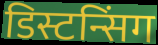
डिस्टन्सिंग